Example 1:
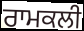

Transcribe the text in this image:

ਰਾਮਕਲੀ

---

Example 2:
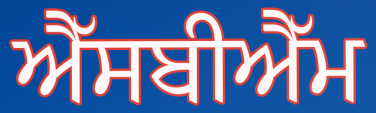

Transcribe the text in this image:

ਐੱਸਬੀਐੱਮ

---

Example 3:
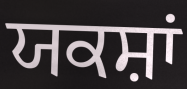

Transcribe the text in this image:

ਯਕਸ਼ਾਂ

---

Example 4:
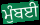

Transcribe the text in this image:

ਮੁੰਬਈ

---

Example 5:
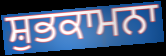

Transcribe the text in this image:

ਸ਼ੁਭਕਾਮਨਾ